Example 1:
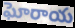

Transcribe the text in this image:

ఘోరాయ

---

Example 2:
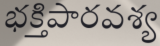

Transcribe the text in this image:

భక్తిపారవశ్య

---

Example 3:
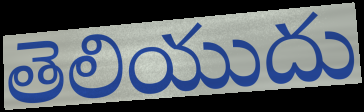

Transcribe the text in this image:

తెలియుదు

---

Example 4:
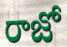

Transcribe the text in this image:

రాజో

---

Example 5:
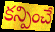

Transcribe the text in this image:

కన్పించే